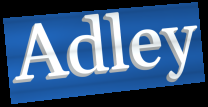
Adley